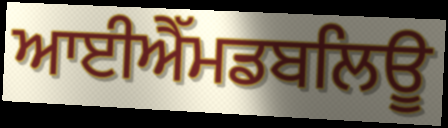
ਆਈਐੱਮਡਬਲਿਊ